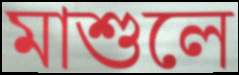
মাশুলে